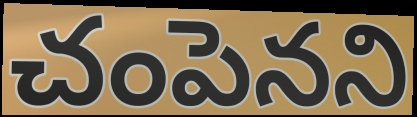
చంపెనని